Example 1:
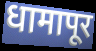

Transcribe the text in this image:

धामापूर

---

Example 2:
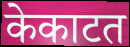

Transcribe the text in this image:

केकाटत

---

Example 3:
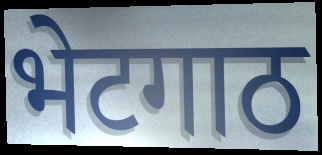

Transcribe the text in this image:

भेटगाठ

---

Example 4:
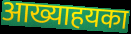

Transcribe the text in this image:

आख्याहयका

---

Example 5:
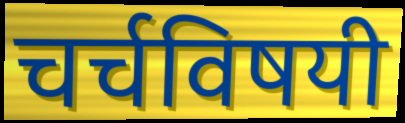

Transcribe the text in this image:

चर्चविषयी